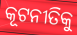
କୂଟନୀତିକୁ